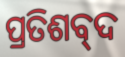
ପ୍ରତିଶବ୍‌ଦ